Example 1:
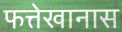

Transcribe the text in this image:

फत्तेखानास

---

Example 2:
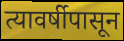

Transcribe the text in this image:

त्यावर्षीपासून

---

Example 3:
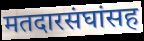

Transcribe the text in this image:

मतदारसंघांसह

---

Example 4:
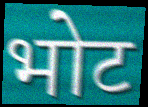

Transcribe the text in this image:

भोट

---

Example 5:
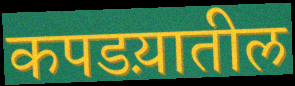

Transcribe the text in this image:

कपडय़ातील